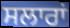
ਸਲਾਰਾਂ